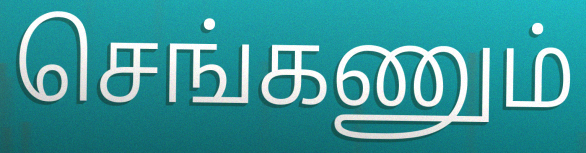
செங்கணும்